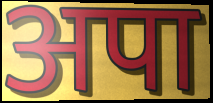
अपा